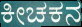
ಕೀಚಕನ